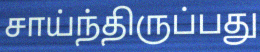
சாய்ந்திருப்பது